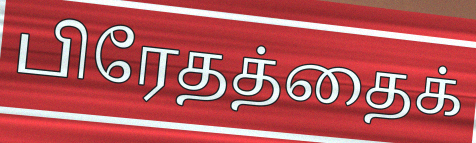
பிரேதத்தைக்